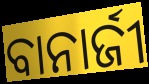
ବାନାର୍ଜୀ